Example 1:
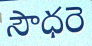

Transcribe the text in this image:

సౌధరె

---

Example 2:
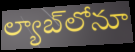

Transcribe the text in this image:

ల్యాబ్‌లోనూ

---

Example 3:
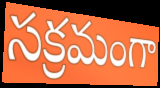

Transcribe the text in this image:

సక్రమంగా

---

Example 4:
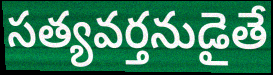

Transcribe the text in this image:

సత్యవర్తనుడైతే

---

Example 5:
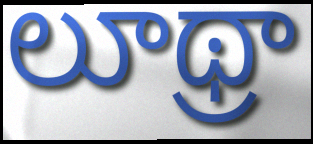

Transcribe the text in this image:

లూథ్రా